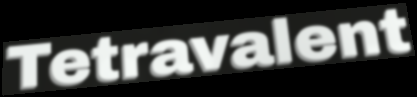
Tetravalent